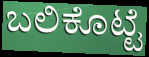
ಬಲಿಕೊಟ್ಟೆ